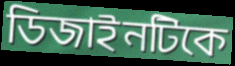
ডিজাইনটিকে